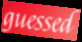
guessed